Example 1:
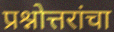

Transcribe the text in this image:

प्रश्नोत्तरांचा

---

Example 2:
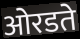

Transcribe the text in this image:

ओरडते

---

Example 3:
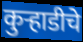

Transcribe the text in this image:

कुऱ्हाडीचे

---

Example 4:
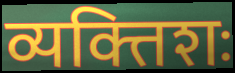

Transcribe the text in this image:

व्यक्तिशः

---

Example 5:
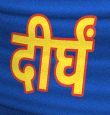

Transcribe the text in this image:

दीर्घं